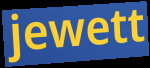
jewett